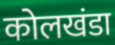
कोलखंडा